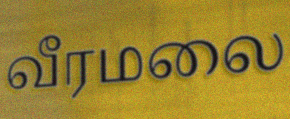
வீரமலை